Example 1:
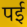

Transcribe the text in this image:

पई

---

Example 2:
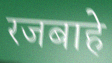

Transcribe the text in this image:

रजबाहे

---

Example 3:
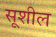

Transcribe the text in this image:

सूशील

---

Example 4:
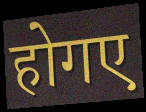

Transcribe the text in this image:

होगए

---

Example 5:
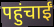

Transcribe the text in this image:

पहुंचाईं